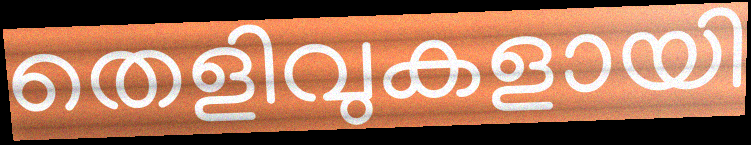
തെളിവുകളായി